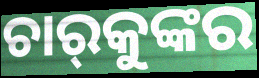
ଚାର୍‌କୁଙ୍କର